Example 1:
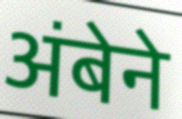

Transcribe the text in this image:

अंबेने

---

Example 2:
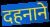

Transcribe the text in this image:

दहनाने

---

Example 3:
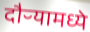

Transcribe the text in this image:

दौऱ्यामध्ये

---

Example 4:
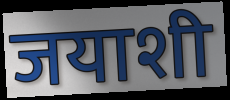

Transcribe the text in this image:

जयाशी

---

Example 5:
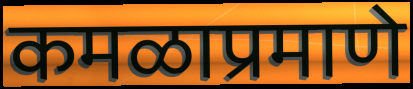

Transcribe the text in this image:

कमळाप्रमाणे